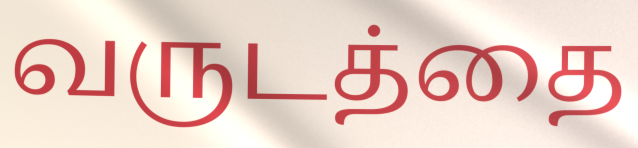
வருடத்தை